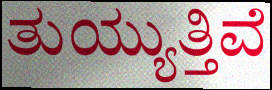
ತುಯ್ಯುತ್ತಿವೆ